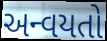
અન્વયતો